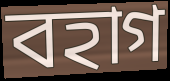
বহাগ